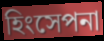
হিংসেপনা